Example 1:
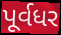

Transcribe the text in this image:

પૂર્વધર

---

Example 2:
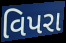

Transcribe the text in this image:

વિપરા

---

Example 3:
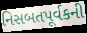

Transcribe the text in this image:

નિસબતપૂર્વકની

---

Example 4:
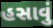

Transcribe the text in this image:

હસાવું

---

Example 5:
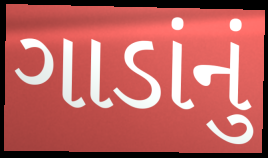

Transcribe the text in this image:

ગાડાંનું